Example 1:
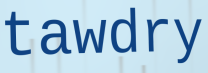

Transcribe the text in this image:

tawdry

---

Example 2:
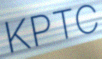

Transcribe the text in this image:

KPTC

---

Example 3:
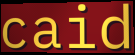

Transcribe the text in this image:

caid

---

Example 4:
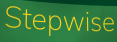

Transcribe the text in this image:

Stepwise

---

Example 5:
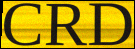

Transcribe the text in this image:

CRD